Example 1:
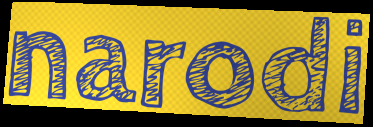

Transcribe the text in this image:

narodi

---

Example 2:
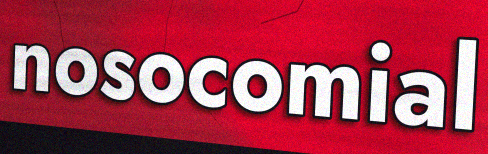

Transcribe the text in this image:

nosocomial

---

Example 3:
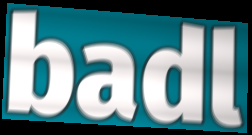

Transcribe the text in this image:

badl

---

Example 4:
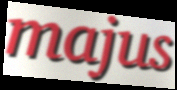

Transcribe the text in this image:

majus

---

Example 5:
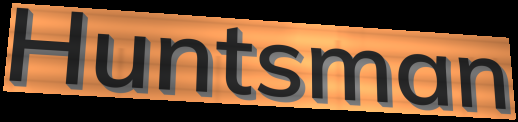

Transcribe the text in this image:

Huntsman